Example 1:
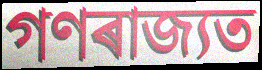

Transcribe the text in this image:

গণৰাজ্যত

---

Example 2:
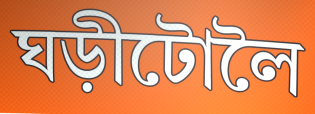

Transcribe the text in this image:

ঘড়ীটোলৈ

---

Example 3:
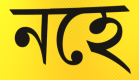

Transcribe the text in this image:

নহে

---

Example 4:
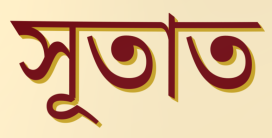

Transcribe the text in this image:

সূতাত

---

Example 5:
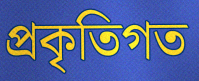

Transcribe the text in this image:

প্ৰকৃতিগত